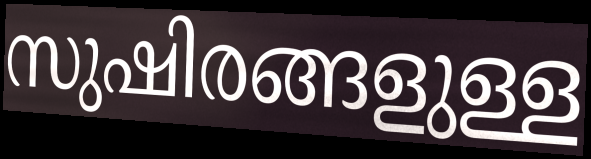
സുഷിരങ്ങളുള്ള